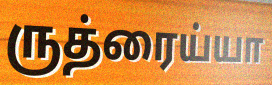
ருத்ரைய்யா